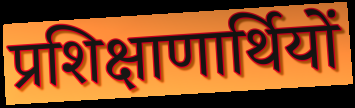
प्रशिक्षाणार्थियों